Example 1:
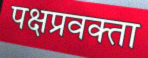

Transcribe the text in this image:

पक्षप्रवक्ता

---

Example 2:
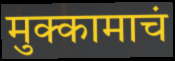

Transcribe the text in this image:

मुक्कामाचं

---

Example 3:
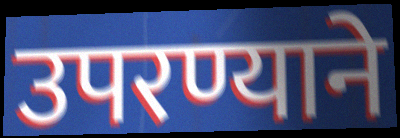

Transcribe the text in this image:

उपरण्याने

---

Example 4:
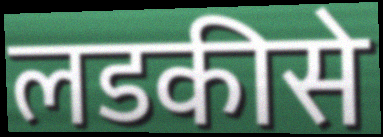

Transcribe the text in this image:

लडकीसे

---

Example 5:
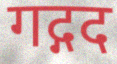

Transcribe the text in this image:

गद्गद